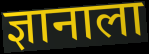
ज्ञानाला